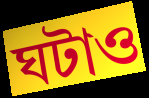
ঘটাও